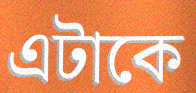
এটাকে